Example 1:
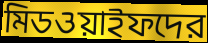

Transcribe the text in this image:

মিডওয়াইফদের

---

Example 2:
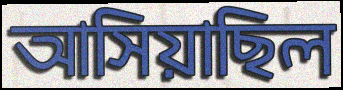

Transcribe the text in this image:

আসিয়াছিল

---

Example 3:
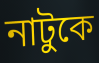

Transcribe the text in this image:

নাটুকে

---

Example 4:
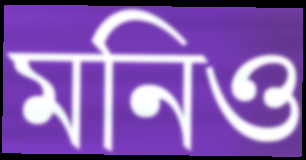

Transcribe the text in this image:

মনিও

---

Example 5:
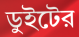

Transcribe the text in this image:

ডুইটের